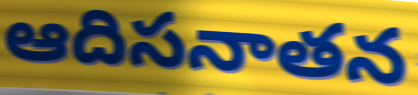
ఆదిసనాతన